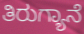
ತಿರುಗ್ಯಾನೆ